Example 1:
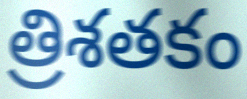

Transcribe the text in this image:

త్రిశతకం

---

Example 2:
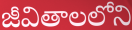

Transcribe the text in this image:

జీవితాలలోని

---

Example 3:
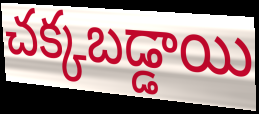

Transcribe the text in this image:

చక్కబడ్డాయి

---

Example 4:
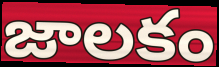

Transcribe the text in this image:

జాలకం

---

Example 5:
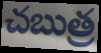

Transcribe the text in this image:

చబుత్ర